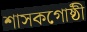
শাসকগোষ্ঠী